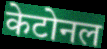
केटोनल